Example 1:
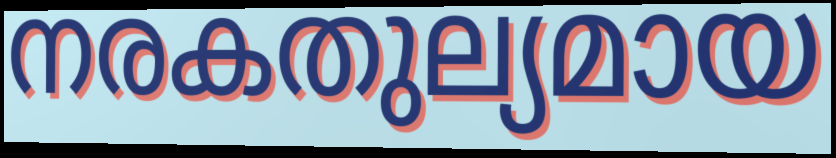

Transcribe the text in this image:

നരകതുല്യമായ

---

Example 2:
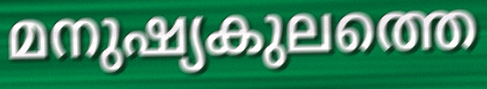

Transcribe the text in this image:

മനുഷ്യകുലത്തെ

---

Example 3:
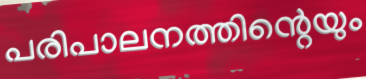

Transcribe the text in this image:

പരിപാലനത്തിന്റെയും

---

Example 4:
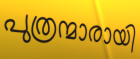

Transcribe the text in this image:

പുത്രന്മാരായി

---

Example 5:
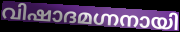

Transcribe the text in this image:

വിഷാദമഗ്നനായി